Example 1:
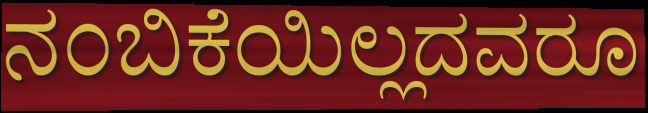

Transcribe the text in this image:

ನಂಬಿಕೆಯಿಲ್ಲದವರೂ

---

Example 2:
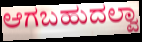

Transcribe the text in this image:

ಆಗಬಹುದಲ್ವಾ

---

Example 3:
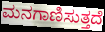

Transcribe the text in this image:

ಮನಗಾಣಿಸುತ್ತದೆ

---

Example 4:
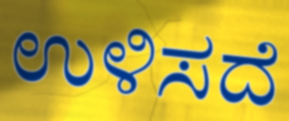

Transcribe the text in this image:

ಉಳಿಸದೆ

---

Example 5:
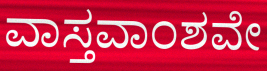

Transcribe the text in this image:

ವಾಸ್ತವಾಂಶವೇ